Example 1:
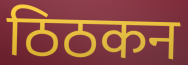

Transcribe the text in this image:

ठिठकन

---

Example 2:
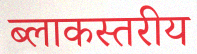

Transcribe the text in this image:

ब्लाकस्तरीय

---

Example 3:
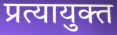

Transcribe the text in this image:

प्रत्यायुक्त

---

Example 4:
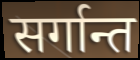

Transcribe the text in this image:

सर्गान्त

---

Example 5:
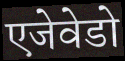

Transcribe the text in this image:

एजेवेडो